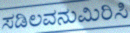
ಸಡಿಲವನುಮಿರಿಸಿ